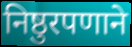
निष्ठुरपणाने